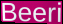
Beeri